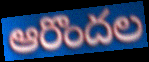
ఆరొందల